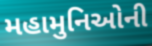
મહામુનિઓની